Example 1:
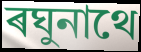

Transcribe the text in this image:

ৰঘুনাথে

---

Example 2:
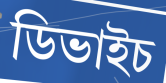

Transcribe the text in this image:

ডিভাইচ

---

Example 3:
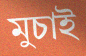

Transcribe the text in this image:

মুচাই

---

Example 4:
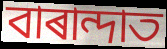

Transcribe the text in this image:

বাৰান্দাত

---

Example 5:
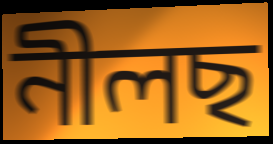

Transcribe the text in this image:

নীলছ